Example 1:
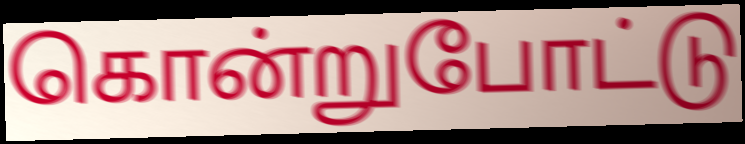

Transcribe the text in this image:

கொன்றுபோட்டு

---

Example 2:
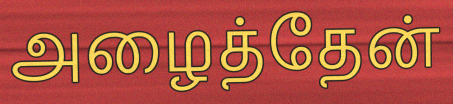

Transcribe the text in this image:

அழைத்தேன்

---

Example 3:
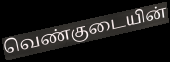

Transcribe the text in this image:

வெண்குடையின்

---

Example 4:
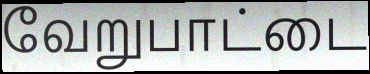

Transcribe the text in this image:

வேறுபாட்டை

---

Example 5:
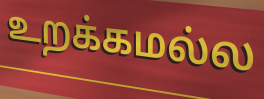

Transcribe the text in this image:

உறக்கமல்ல